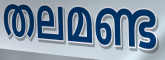
തലമണ്ട